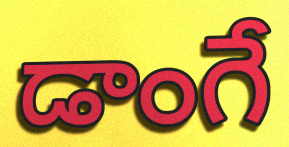
డాంగే